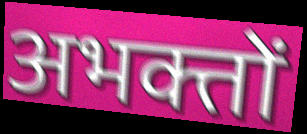
अभक्तों